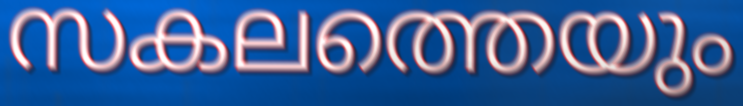
സകലത്തെയും